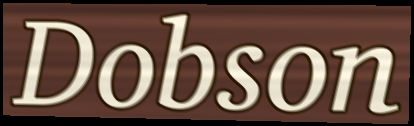
Dobson